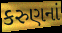
કરુણનાં